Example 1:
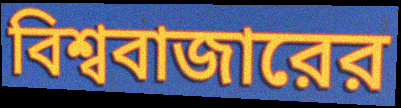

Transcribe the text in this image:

বিশ্ববাজারের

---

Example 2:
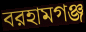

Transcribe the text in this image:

বরহামগঞ্জ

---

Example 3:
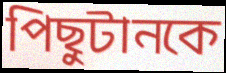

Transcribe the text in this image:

পিছুটানকে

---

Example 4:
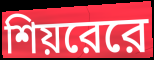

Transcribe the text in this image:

শিয়রেরে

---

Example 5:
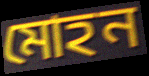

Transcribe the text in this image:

মোহন